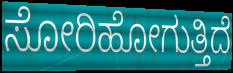
ಸೋರಿಹೋಗುತ್ತಿದೆ